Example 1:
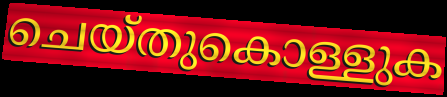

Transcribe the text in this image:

ചെയ്തുകൊള്ളുക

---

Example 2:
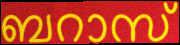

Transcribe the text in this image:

ബറാസ്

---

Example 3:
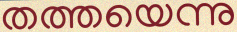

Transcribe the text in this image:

തത്തയെന്നു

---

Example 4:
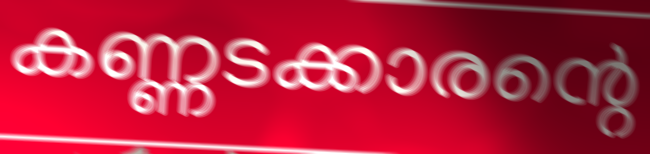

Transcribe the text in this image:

കണ്ണടക്കാരന്റെ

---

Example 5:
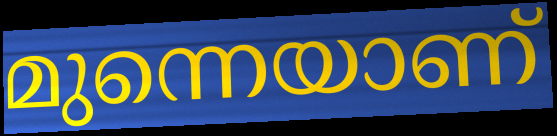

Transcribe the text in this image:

മുന്നെയാണ്